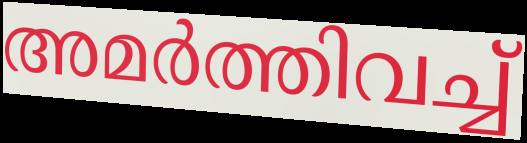
അമർത്തിവച്ച്